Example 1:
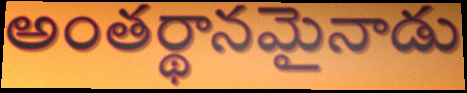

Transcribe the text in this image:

అంతర్థానమైనాడు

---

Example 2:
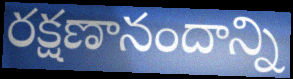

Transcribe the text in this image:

రక్షణానందాన్ని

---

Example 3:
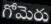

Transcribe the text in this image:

గోమెరు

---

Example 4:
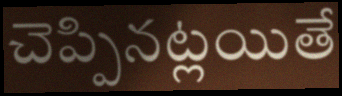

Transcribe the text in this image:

చెప్పినట్లయితే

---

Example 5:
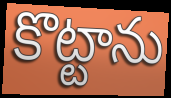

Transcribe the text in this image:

కొట్టాను